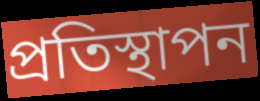
প্ৰতিস্থাপন